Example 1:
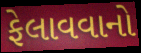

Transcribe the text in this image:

ફેલાવવાનો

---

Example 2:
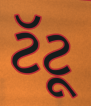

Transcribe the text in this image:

ટૅટૂ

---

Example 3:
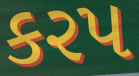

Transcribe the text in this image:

કરપ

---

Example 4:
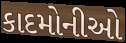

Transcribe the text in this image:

કાદમોનીઓ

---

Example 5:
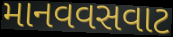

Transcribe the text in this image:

માનવવસવાટ